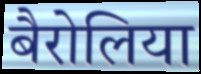
बैरोलिया